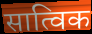
सात्विक